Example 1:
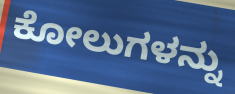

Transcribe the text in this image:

ಕೋಲುಗಳನ್ನು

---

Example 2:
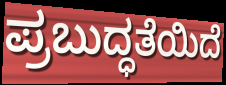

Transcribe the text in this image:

ಪ್ರಬುದ್ಧತೆಯಿದೆ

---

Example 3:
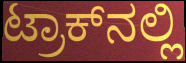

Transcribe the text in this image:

ಟ್ರಾಕ್‌ನಲ್ಲಿ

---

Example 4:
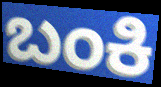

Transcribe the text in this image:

ಬಂಕಿ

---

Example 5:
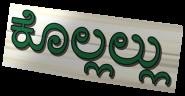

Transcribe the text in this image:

ಕೊಲ್ಲಲ್ಲು